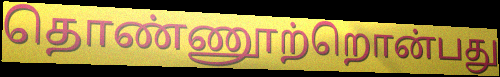
தொண்ணூற்றொன்பது